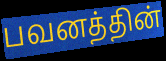
பவனத்தின்